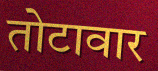
तोटावार